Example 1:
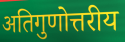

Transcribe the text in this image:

अतिगुणोत्तरीय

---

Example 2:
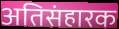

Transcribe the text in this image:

अतिसंहारक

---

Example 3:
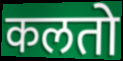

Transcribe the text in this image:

कलतो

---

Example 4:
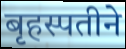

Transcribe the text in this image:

बृहस्पतीने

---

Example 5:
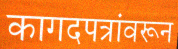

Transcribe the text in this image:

कागदपत्रांवरून